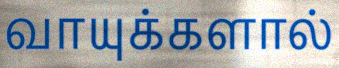
வாயுக்களால்